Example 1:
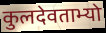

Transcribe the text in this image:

कुलदेवताभ्यो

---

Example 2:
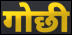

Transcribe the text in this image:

गोछी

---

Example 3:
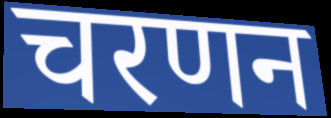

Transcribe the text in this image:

चरणन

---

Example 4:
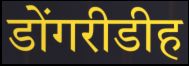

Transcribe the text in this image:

डोंगरीडीह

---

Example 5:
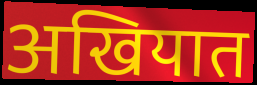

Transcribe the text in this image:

अखियात